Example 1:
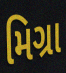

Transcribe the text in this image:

મિગ્રા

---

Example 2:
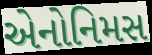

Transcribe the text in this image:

એનોનિમસ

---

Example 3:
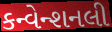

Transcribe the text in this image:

કન્વેન્શનલી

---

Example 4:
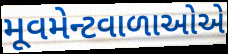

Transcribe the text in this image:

મૂવમેન્ટવાળાઓએ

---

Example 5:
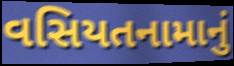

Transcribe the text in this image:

વસિયતનામાનું